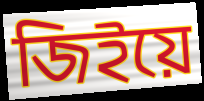
জিইয়ে